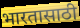
भारतासाठी